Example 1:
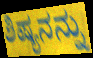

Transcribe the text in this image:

ಶಿಷ್ಯನನ್ನು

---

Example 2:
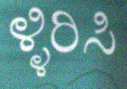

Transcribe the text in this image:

ಳ್ಳಿರಿಸಿ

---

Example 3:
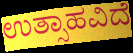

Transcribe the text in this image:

ಉತ್ಸಾಹವಿದೆ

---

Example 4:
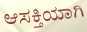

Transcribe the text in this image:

ಆಸಕ್ತಿಯಾಗಿ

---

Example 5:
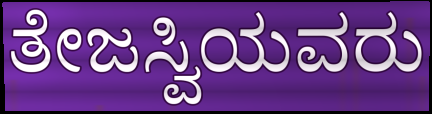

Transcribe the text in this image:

ತೇಜಸ್ವಿಯವರು